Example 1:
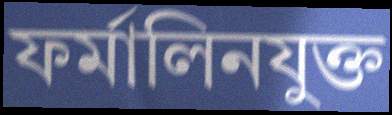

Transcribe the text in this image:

ফর্মালিনযুক্ত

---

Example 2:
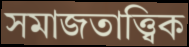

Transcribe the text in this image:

সমাজতাত্ত্বিক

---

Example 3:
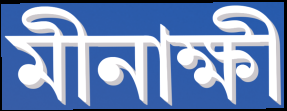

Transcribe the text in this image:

মীনাক্ষী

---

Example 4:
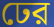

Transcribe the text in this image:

ঢের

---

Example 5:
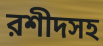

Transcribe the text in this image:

রশীদসহ